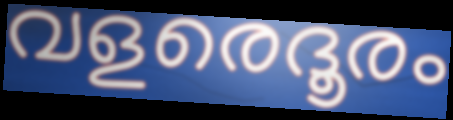
വളരെദൂരം